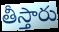
తీస్తారు